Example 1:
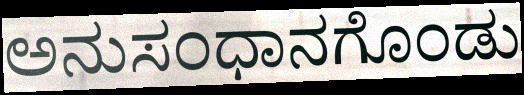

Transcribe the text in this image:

ಅನುಸಂಧಾನಗೊಂಡು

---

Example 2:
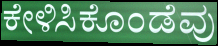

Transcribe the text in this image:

ಕೇಳಿಸಿಕೊಂಡೆವು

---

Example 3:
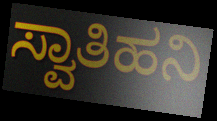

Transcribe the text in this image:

ಸ್ವಾತಿಹನಿ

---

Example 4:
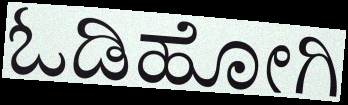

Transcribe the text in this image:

ಓಡಿಹೋಗಿ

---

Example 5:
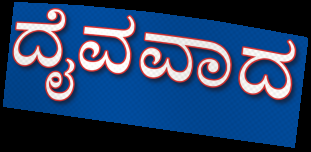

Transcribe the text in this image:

ದೈವವಾದ